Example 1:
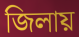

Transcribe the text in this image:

জিলায়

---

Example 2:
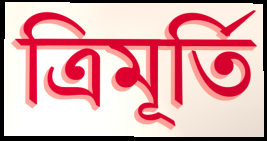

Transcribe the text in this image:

ত্ৰিমূৰ্তি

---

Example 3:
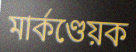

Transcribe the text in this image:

মাৰ্কণ্ডেয়ক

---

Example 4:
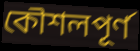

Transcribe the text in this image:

কৌশলপূৰ্ণ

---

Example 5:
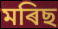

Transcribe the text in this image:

মৰিছ